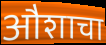
औशाचा